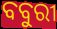
ବବୁରୀ